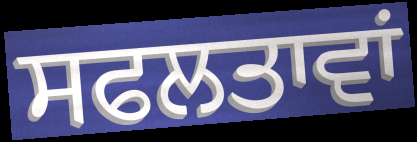
ਸਫਲਤਾਵਾਂ